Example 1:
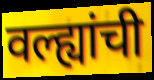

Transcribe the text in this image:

वल्ह्यांची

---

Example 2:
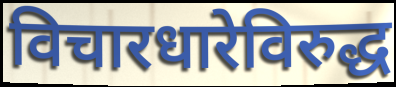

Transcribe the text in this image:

विचारधारेविरुद्ध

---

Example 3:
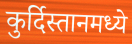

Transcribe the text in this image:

कुर्दिस्तानमध्ये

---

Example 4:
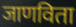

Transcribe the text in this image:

जाणविता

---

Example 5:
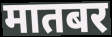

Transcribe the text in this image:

मातबर